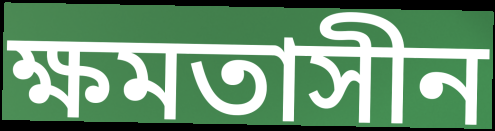
ক্ষমতাসীন